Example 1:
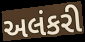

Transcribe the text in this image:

અલંકરી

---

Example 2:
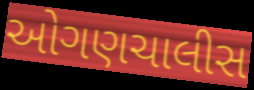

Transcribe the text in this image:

ઓગણચાલીસ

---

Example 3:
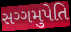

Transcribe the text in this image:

સગ્ગમુપેતિ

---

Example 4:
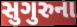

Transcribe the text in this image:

સુગુરુના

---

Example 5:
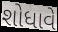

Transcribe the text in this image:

શોધાવે